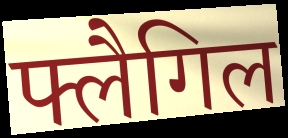
फ्लैगिल